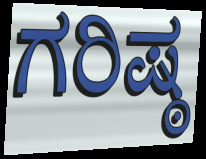
ಗರಿಷ್ಠ